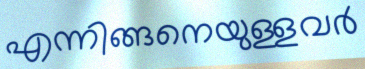
എന്നിങ്ങനെയുള്ളവർ